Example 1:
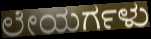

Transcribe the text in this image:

ಲೇಯರ್ಗಳು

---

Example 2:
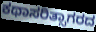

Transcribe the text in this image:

ಕಥಾಸರಿತ್ಸಾಗರದ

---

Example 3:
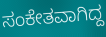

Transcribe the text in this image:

ಸಂಕೇತವಾಗಿದ್ದ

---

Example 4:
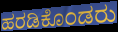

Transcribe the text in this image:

ಹರಡಿಕೊಂಡರು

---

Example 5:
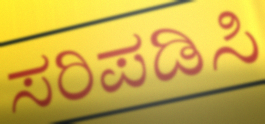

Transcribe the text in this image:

ಸರಿಪಡಿಸಿ